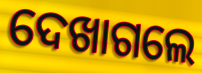
ଦେଖାଗଲେ